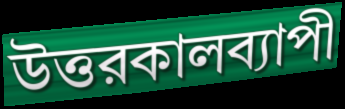
উত্তরকালব্যাপী